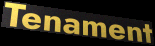
Tenament